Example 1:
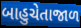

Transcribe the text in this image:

બાહુચેતાજાળ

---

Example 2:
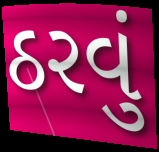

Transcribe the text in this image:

ઠરવું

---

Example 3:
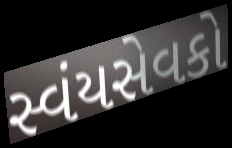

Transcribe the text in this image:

સ્વંયસેવકો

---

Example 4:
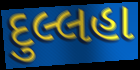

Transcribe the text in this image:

દુલ્લહા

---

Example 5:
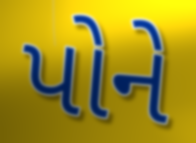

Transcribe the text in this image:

પોને